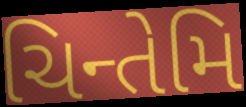
ચિન્તેમિ